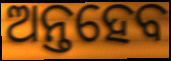
ଅନ୍ତହେବ